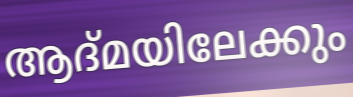
ആദ്മയിലേക്കും